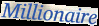
Millionaire